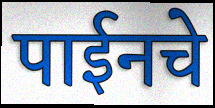
पाईनचे